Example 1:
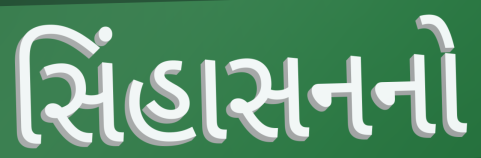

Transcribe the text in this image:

સિંહાસનનો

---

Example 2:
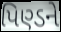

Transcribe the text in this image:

પિણ્ડને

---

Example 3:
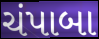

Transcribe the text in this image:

ચંપાબા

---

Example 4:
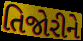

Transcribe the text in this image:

તિજોરીને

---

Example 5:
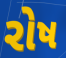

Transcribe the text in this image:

રોષ